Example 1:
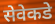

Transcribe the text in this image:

सेवेकडे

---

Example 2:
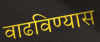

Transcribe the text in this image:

वाढविण्यास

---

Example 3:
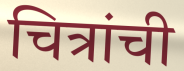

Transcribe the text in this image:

चित्रांची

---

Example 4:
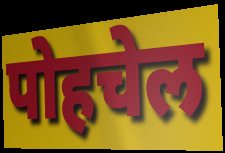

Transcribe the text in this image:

पोहचेल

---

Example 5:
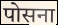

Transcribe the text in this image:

पोसना